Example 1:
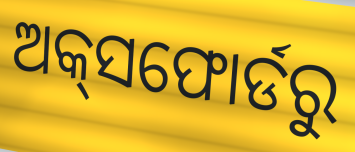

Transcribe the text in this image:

ଅକ୍‌ସଫୋର୍ଡରୁ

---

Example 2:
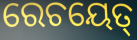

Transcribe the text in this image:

ରେଚୟେତ୍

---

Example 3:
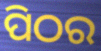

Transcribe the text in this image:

ପିଠର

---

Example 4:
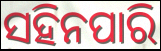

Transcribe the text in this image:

ସହିନପାରି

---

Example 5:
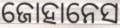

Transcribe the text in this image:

ଜୋହାନେସ